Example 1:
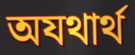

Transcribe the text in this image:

অযথার্থ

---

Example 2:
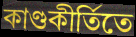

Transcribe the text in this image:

কাণ্ডকীর্তিতে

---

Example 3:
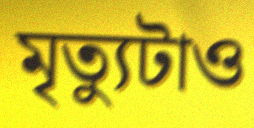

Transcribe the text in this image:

মৃত্যুটাও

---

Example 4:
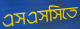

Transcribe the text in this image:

এসএসসিতে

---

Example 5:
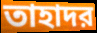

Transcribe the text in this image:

তাহাদর